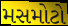
મસમોટો